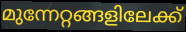
മുന്നേറ്റങ്ങളിലേക്ക്